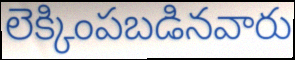
లెక్కింపబడినవారు